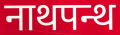
नाथपन्थ